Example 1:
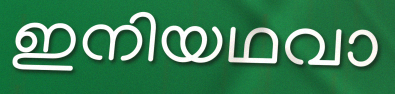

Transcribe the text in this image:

ഇനിയഥവാ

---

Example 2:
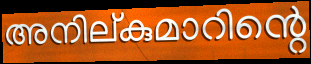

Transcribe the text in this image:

അനില്കുമാറിന്റെ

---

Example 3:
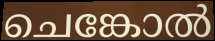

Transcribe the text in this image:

ചെങ്കോൽ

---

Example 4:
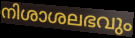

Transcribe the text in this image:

നിശാശലഭവും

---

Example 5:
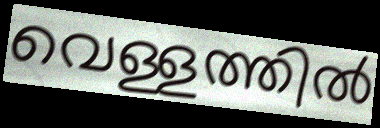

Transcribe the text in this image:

വെള്ളത്തിൽ